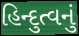
હિન્દુત્વનું